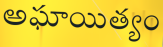
అఘాయిత్యం